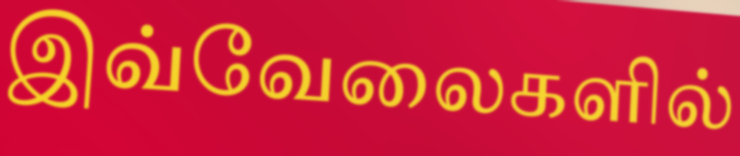
இவ்வேலைகளில்